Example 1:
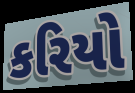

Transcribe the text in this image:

કરિયો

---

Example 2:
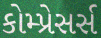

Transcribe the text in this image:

કોમ્પ્રેસર્સ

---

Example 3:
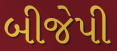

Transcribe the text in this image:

બીજેપી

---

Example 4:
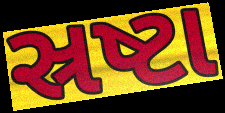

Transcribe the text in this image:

સ્રષ્ટા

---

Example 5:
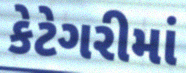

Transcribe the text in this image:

કેટેગરીમાં